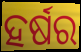
ହର୍ଷର